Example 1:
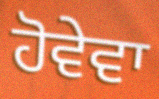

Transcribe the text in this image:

ਹੋਵੇਵਾ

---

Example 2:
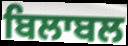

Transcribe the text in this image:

ਬਿਲਾਬਲ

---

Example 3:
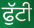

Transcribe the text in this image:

ਫੁੱਟੀ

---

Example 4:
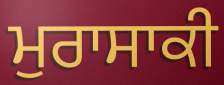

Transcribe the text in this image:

ਮੁਰਾਸਾਕੀ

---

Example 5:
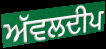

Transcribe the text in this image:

ਅੱਵਲਦੀਪ